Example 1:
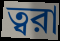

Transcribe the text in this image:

ত্বরা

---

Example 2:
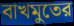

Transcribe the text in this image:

বাখমুতের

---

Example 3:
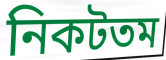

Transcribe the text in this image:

নিকটতম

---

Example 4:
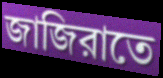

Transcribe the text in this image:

জাজিরাতে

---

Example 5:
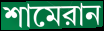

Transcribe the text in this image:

শামেরান